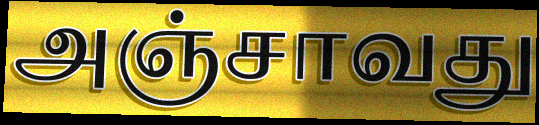
அஞ்சாவது